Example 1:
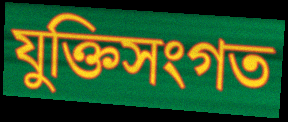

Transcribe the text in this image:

যুক্তিসংগত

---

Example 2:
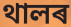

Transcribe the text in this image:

থালৰ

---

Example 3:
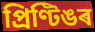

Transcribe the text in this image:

প্ৰিণ্টিঙৰ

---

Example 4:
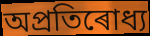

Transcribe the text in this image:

অপ্ৰতিৰোধ্য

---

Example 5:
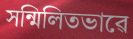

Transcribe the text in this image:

সন্মিলিতভাৱে